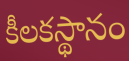
కీలకస్థానం